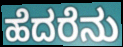
ಹೆದರೆನು